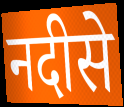
नदीसे